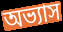
অভ্যাস